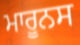
ਮਾਰੂਨਸ